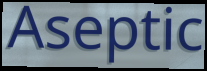
Aseptic